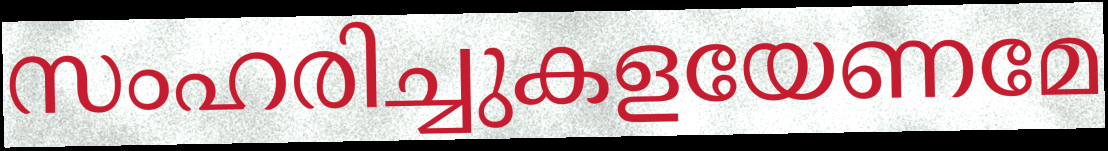
സംഹരിച്ചുകളയേണമേ